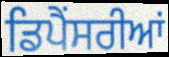
ਡਿਪੈਂਸਰੀਆਂ